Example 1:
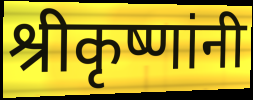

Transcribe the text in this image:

श्रीकृष्णांनी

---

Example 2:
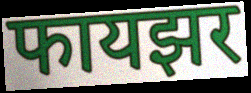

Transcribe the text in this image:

फायझर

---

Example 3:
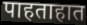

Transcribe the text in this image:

पाहताहात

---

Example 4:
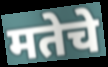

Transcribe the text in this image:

मतेचे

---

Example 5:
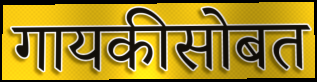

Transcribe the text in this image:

गायकीसोबत